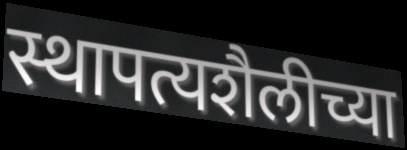
स्थापत्यशैलीच्या